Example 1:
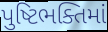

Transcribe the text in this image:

પુષ્ટિભક્તિમાં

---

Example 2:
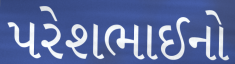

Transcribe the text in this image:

પરેશભાઈનો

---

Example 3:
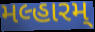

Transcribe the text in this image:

મલ્હારમ્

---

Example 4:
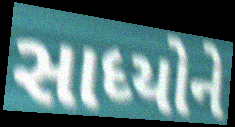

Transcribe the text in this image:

સાધ્યોને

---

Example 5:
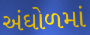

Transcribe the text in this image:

અંઘોળમાં